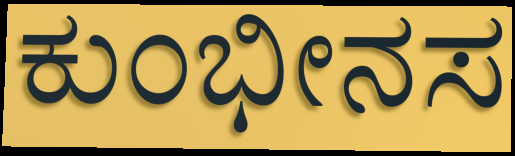
ಕುಂಭೀನಸ